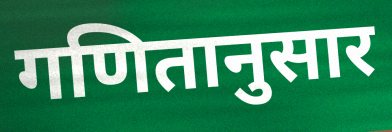
गणितानुसार